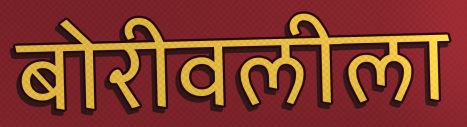
बोरीवलीला